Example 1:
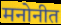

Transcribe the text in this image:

मनोनीत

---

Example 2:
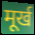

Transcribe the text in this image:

मूर्ख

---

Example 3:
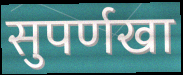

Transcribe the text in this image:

सुपर्णखा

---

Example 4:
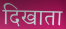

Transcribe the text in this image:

दिखाता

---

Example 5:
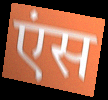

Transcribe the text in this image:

एंस